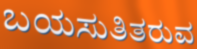
ಬಯಸುತಿತರುವ